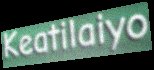
Keatilaiyo